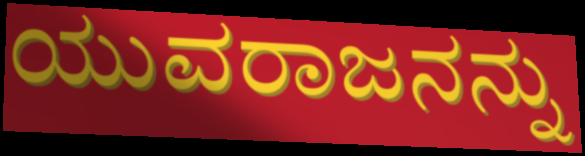
ಯುವರಾಜನನ್ನು